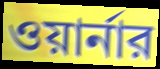
ওয়ার্নার